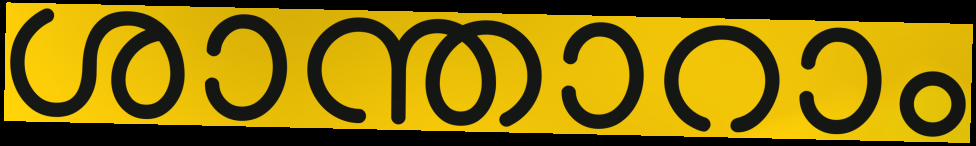
ശാന്താറാം